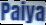
Paiya